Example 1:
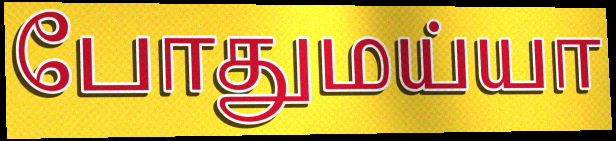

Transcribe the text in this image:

போதுமய்யா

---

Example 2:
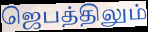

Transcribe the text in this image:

ஜெபத்திலும்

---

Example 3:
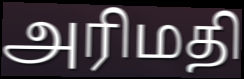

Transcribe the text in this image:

அரிமதி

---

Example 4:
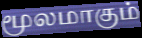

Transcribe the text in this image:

மூலமாகும்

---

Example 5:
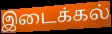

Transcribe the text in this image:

இடைக்கல்